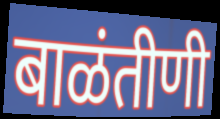
बाळंतीणी